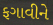
ફગાવીને